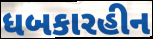
ધબકારહીન